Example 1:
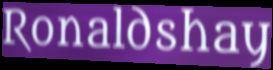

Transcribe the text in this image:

Ronaldshay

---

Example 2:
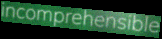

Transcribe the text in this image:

incomprehensible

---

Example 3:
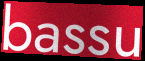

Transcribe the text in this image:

bassu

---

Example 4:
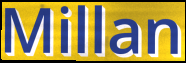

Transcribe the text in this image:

Millan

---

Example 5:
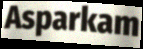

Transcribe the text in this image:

Asparkam